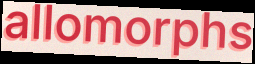
allomorphs